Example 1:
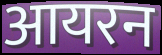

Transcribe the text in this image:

आयरन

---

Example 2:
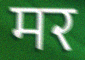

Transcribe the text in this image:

मर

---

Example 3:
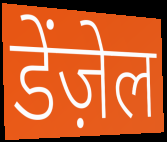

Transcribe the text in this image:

डेंज़ेल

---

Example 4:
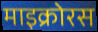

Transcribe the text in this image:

माइक्रोरस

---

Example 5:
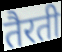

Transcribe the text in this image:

तैरती